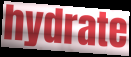
hydrate